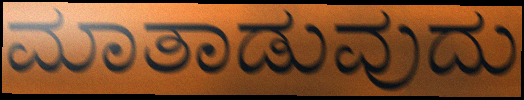
ಮಾತಾಡುವುದು